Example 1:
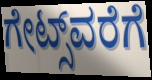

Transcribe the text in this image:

ಗೇಟ್ಸ್‌ವರೆಗೆ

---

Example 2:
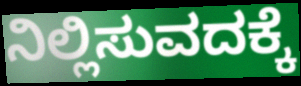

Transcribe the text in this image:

ನಿಲ್ಲಿಸುವದಕ್ಕೆ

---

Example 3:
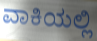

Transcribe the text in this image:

ವಾಕಿಯಲ್ಲಿ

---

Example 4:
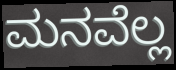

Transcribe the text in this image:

ಮನವೆಲ್ಲ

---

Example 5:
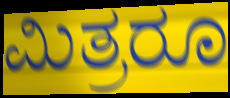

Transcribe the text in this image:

ಮಿತ್ರರೂ